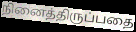
நினைத்திருப்பதை